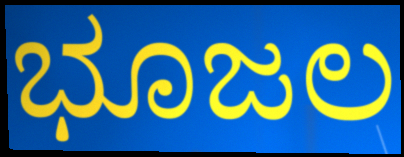
ಭೂಜಲ